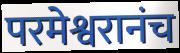
परमेश्वरानंच